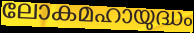
ലോകമഹായുദ്ധം